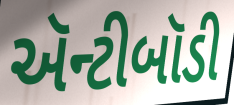
ઍન્ટીબૉડી